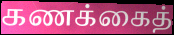
கணக்கைத்